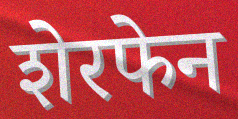
शेरफेन